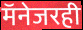
मॅनेजरही